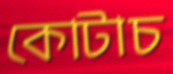
কোটাচ